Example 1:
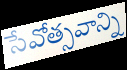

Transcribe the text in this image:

సేవోత్సవాన్ని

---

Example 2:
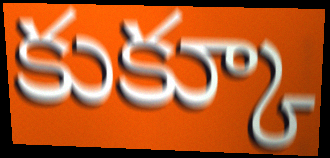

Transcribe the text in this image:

కుక్కూ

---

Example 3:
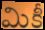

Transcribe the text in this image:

మికీ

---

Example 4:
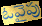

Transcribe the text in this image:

ఓవైపు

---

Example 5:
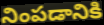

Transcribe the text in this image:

నింపడానికి